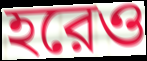
হরেও